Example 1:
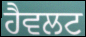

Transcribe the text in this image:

ਹੈਵਲਟ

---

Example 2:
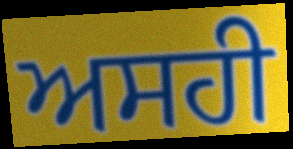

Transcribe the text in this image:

ਅਸਹੀ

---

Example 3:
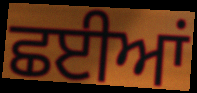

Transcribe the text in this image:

ਛਈਆਂ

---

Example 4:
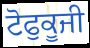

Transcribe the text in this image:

ਟੋਫੁਕੂਜੀ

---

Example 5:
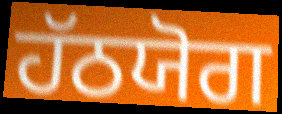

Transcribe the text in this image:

ਹੱਠਯੋਗ